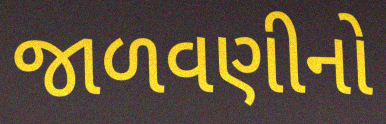
જાળવણીનો